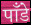
पाँडे